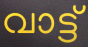
വാട്ട്